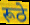
रूठे